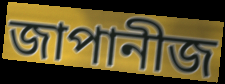
জাপানীজ